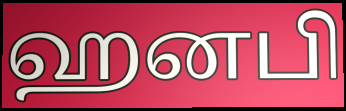
ஹனபி